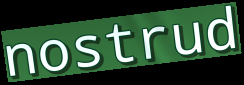
nostrud